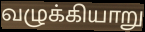
வழுக்கியாறு